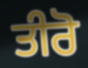
ਤੀਰੋ